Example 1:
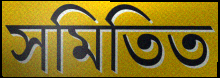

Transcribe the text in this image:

সমিতিত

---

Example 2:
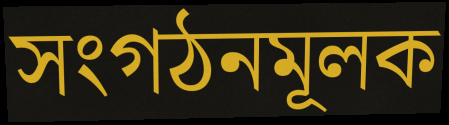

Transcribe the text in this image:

সংগঠনমূলক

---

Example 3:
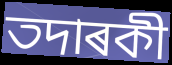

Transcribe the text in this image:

তদাৰকী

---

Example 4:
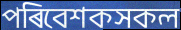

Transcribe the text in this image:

পৰিবেশকসকল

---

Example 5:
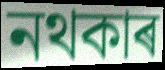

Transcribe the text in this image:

নথকাৰ